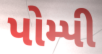
પોમ્પી